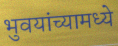
भुवयांच्यामध्ये